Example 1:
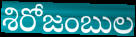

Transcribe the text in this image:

శిరోజంబుల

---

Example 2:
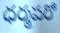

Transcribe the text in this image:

ధర్మపరో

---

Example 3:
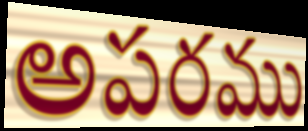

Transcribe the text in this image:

అపరము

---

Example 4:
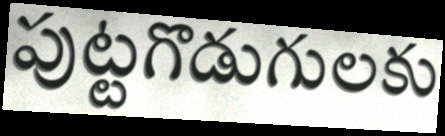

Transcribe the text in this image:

పుట్టగొడుగులకు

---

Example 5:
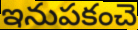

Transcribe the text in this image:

ఇనుపకంచె